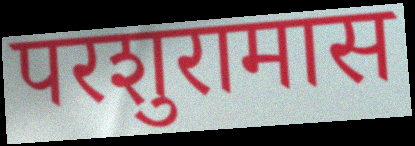
परशुरामास